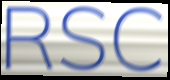
RSC